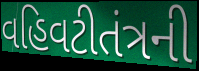
વહિવટીતંત્રની